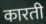
कारती